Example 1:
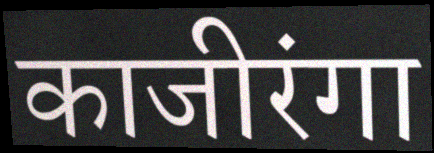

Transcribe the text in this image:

काजीरंगा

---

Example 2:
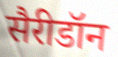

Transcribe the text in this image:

सैरीडॉन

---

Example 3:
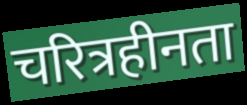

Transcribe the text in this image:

चरित्रहीनता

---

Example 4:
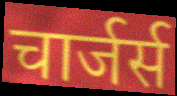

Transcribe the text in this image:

चार्जर्स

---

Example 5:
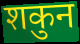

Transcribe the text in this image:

शकुन